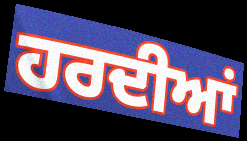
ਹਰਦੀਆਂ